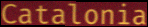
Catalonia